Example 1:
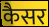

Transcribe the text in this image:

कैसर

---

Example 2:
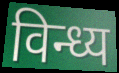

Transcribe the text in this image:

विन्ध्य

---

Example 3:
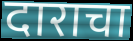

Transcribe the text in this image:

दाराचा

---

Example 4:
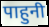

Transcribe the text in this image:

पाहुनी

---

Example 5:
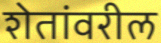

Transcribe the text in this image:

शेतांवरील